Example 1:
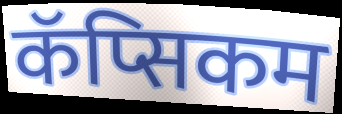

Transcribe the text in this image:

कॅप्सिकम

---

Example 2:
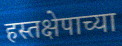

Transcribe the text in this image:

हस्तक्षेपाच्या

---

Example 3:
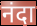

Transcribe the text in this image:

नंदा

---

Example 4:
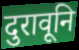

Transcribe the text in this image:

दुरावूनि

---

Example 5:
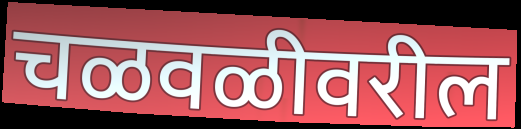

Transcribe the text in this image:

चळवळीवरील